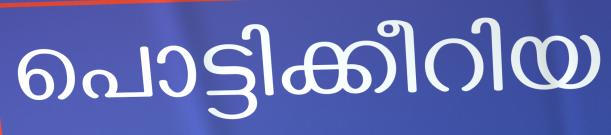
പൊട്ടിക്കീറിയ